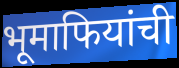
भूमाफियांची